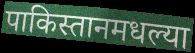
पाकिस्तानमधल्या